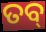
ତବ୍